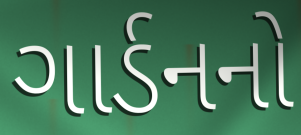
ગાર્ડનનો